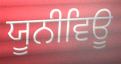
ਯੂਨੀਵਿਊ